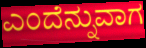
ಎಂದೆನ್ನುವಾಗ